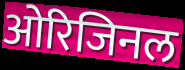
ओरिजिनल